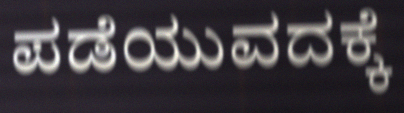
ಪಡೆಯುವದಕ್ಕೆ